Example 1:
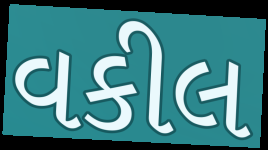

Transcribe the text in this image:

વકીલ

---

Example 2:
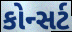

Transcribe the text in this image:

કોન્સર્ટ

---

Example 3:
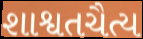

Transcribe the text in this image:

શાશ્વતચૈત્ય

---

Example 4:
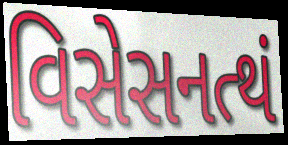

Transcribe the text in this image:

વિસેસનત્થં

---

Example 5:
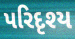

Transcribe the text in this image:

પરિદૃશ્ય